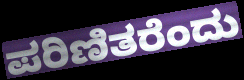
ಪರಿಣಿತರೆಂದು